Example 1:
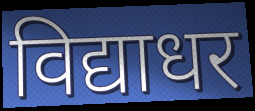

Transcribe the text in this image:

विद्याधर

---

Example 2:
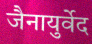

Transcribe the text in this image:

जैनायुर्वेद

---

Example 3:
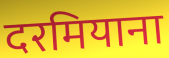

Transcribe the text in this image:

दरमियाना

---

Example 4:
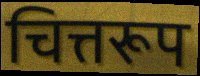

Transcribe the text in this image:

चित्तरूप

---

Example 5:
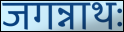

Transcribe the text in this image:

जगन्नाथः